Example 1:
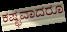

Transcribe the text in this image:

ಕಷ್ಟವಾದರೂ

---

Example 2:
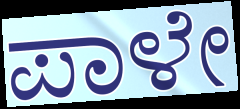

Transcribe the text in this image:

ಪಾಳೇ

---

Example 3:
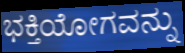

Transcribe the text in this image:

ಭಕ್ತಿಯೋಗವನ್ನು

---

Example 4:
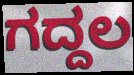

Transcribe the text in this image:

ಗದ್ದಲ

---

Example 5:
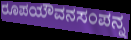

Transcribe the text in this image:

ರೂಪಯೌವನಸಂಪನ್ನ